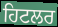
ਹਿਟਲਰ